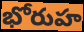
భోరుహ